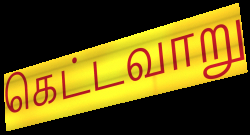
கெட்டவாறு